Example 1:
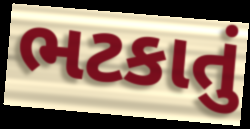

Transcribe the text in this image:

ભટકાતું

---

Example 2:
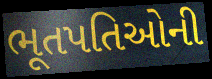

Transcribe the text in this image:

ભૂતપતિઓની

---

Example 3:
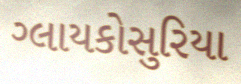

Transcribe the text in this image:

ગ્લાયકોસુરિયા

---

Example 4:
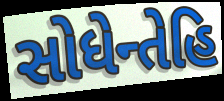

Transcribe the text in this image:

સોધેન્તેહિ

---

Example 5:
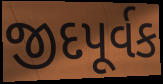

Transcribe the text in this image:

જીદપૂર્વક